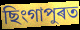
ছিংগাপুৰত